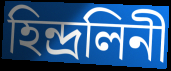
হিন্দ্রলিনী